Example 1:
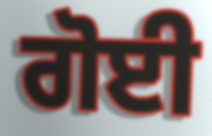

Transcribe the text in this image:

ਗੋਈ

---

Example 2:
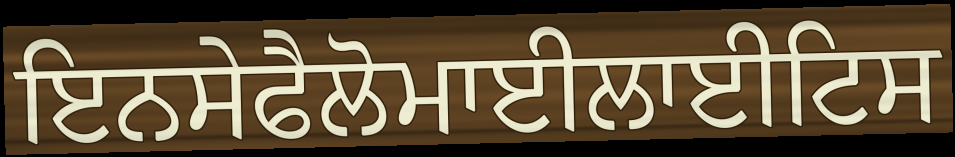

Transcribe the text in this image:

ਇਨਸੇਫੈਲੋਮਾਈਲਾਈਟਿਸ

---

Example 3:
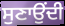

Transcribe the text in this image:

ਸੁਣਾਉਂਦੀ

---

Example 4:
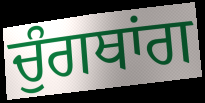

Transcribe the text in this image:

ਚੁੰਗਥਾਂਗ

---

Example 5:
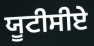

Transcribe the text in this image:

ਯੂਟੀਸੀਏ